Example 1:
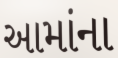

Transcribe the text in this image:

આમાંના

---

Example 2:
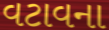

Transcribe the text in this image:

વટાવના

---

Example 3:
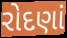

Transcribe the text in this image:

રોદણાં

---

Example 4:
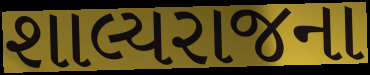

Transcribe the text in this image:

શાલ્યરાજના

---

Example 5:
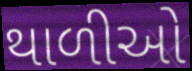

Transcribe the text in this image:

થાળીઓ